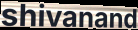
shivanand